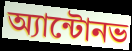
অ্যান্টোনভ